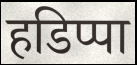
हडिप्पा